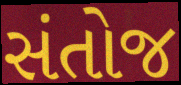
સંતોજ